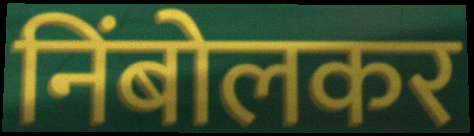
निंबोलकर